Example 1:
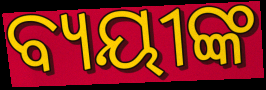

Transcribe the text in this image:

ବ୍ୟୟୀଙ୍କ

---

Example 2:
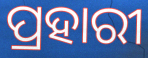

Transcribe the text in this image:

ପ୍ରହାରୀ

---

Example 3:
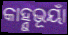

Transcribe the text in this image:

କାହ୍ନୁଭୂୟାଁ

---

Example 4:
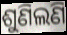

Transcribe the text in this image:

ଶୁଣିଲଣି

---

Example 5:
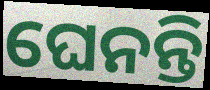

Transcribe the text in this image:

ଘେନନ୍ତି